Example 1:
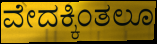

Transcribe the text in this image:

ವೇದಕ್ಕಿಂತಲೂ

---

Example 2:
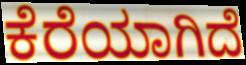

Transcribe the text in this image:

ಕೆರೆಯಾಗಿದೆ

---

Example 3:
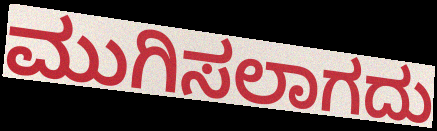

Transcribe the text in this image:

ಮುಗಿಸಲಾಗದು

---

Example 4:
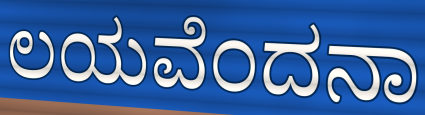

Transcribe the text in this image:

ಲಯವೆಂದನಾ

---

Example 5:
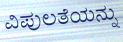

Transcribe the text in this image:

ವಿಪುಲತೆಯನ್ನು